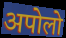
अपोलो